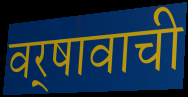
वर्षावाची